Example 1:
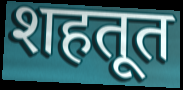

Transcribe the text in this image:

शहतूत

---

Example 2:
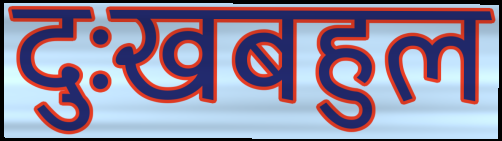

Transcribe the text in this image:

दुःखबहुल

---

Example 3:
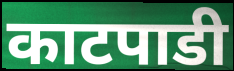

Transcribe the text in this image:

काटपाडी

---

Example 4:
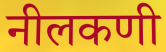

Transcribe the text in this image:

नीलकणी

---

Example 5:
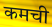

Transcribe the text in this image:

कमची